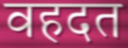
वहदत